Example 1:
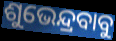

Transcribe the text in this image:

ଶୁଭେନ୍ଦ୍ରବାବୁ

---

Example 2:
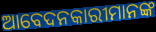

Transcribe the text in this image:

ଆବେଦନକାରୀମାନଙ୍କ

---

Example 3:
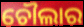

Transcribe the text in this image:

ଚୌଲାର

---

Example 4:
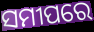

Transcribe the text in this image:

ସମୀପରେ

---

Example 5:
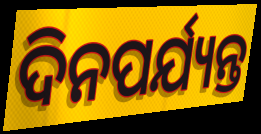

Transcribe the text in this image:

ଦିନପର୍ଯ୍ୟନ୍ତ